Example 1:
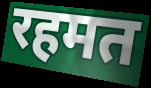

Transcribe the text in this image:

रहमत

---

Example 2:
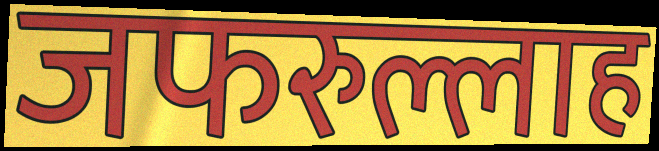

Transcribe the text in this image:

जफरुल्लाह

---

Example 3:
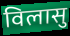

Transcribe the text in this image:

विलासु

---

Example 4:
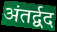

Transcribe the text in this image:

अंतर्द्वद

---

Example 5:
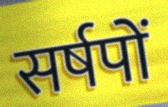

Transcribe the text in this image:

सर्षपों